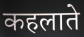
कहलाते